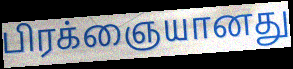
பிரக்ஞையானது